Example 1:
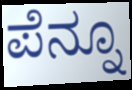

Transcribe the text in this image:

ಪೆನ್ನೂ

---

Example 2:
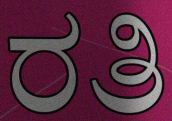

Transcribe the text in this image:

ರತಿ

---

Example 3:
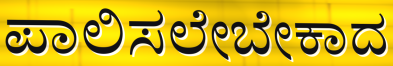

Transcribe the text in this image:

ಪಾಲಿಸಲೇಬೇಕಾದ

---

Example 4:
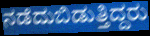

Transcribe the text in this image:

ನಡೆದುಬಿಡುತ್ತಿದ್ದರು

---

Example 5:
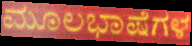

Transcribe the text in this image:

ಮೂಲಭಾಷೆಗಳ